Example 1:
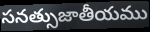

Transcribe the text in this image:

సనత్సుజాతీయము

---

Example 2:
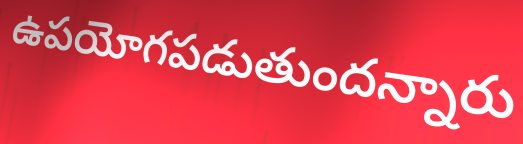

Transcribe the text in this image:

ఉపయోగపడుతుందన్నారు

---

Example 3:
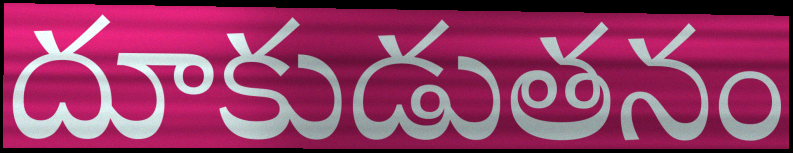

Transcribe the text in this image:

దూకుడుతనం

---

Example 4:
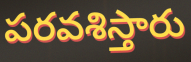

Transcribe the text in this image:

పరవశిస్తారు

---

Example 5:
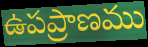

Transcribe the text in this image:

ఉపప్రాణము